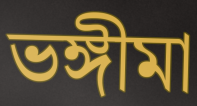
ভঙ্গীমা